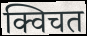
क्विचत